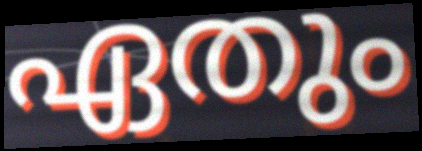
ഏതും